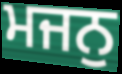
ਮਜਨੁ